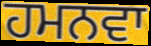
ਹਮਨਵਾ